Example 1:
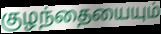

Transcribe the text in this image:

குழந்தையையும்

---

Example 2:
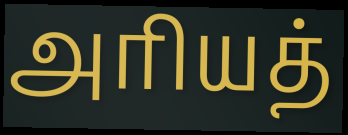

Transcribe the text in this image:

அரியத்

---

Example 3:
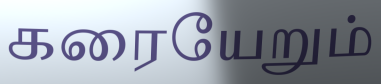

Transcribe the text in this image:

கரையேறும்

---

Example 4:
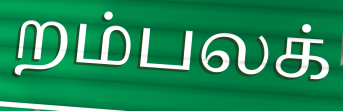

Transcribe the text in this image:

றம்பலக்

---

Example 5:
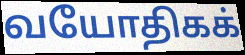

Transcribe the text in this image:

வயோதிகக்